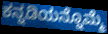
ಕನ್ನಡಿಯನ್ನೊಮ್ಮೆ